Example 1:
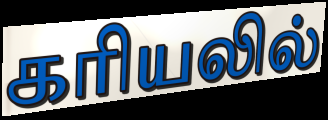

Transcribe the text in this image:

கரியலில்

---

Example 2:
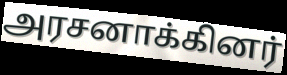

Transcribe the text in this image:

அரசனாக்கினர்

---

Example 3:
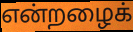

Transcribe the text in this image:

என்றழைக்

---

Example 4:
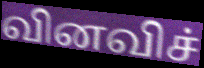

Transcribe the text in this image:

வினவிச்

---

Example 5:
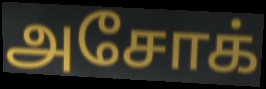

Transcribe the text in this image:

அசோக்